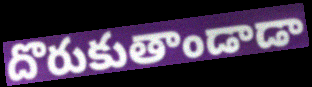
దొరుకుతాండాడా